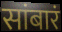
सांबारं